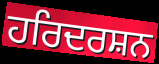
ਹਰਿਦਰਸ਼ਨ